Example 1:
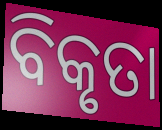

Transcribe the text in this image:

ବିକୃତା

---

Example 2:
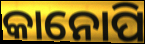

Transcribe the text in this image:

କାନୋପି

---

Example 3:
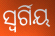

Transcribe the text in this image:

ସ୍ୱର୍ଗିୟ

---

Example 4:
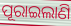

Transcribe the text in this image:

ପୂରାଇଲାଣି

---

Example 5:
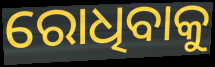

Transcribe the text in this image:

ରୋଧିବାକୁ